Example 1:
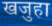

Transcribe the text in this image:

खजुहा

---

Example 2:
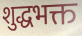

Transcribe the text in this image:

शुद्धभक्त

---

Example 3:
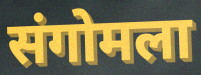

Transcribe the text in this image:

संगोमला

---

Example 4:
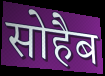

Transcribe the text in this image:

सोहैब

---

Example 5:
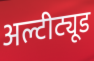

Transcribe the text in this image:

अल्टीट्यूड